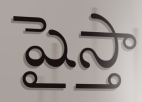
షైస్తా